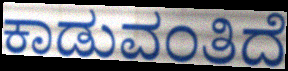
ಕಾಡುವಂತಿದೆ